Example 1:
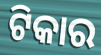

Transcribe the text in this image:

ଟିକାର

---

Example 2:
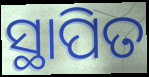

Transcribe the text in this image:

ସ୍ଥାପିତ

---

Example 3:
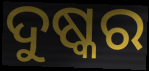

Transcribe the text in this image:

ଦୁଷ୍କର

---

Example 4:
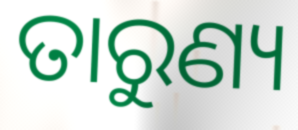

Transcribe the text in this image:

ତାରୁଣ୍ୟ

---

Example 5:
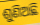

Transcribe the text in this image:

ଶୁଣିଅଛି